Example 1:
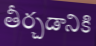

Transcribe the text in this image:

తీర్చడానికి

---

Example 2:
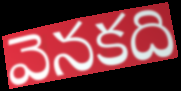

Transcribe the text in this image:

వెనకది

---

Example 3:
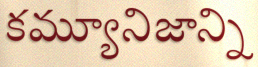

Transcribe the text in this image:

కమ్యూనిజాన్ని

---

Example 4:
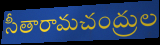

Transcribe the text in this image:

సీతారామచంద్రుల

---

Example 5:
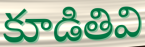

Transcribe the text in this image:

కూడితివి